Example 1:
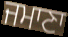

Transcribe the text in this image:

ਜਮਾਣਾ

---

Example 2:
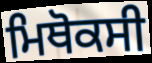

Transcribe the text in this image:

ਮਿਥੋਕਸੀ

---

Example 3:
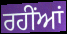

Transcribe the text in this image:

ਰਹੀਂਆਂ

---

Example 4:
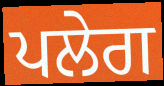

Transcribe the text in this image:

ਪਲੇਗ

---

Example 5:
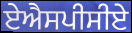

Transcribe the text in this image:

ਏਐਸਪੀਸੀਏ